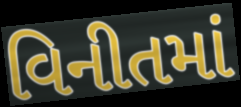
વિનીતમાં